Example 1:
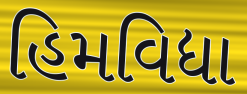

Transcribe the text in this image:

હિમવિદ્યા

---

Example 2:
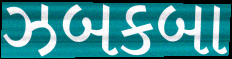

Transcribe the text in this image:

ઝબકબા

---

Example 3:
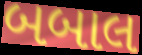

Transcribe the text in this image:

બબાલ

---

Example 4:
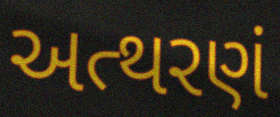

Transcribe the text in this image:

અત્થરણં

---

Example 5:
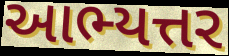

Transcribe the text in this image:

આભ્યત્તર